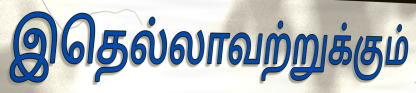
இதெல்லாவற்றுக்கும்